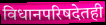
विधानपरिषदेतही